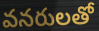
వనరులతో